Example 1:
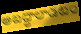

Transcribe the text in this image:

అబద్ధాలాడటం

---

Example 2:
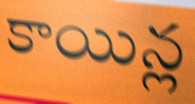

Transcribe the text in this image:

కాయిన్ల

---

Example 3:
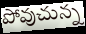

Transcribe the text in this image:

పోవుచున్న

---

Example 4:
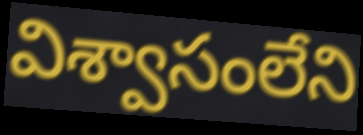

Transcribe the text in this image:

విశ్వాసంలేని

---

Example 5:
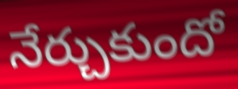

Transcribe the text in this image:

నేర్చుకుందో